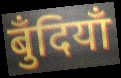
बुँदियाँ